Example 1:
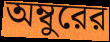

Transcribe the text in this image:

অম্বুরের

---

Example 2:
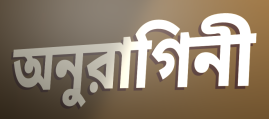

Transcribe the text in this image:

অনুরাগিনী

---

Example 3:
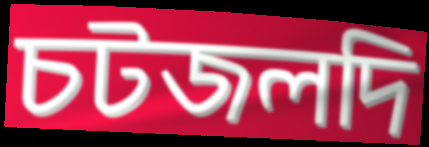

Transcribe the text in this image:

চটজলদি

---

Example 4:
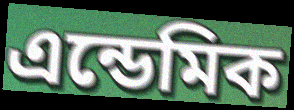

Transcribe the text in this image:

এন্ডেমিক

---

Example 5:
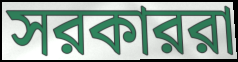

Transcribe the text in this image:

সরকাররা